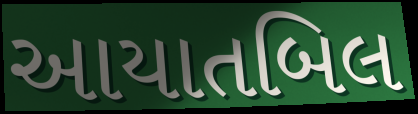
આયાતબિલ